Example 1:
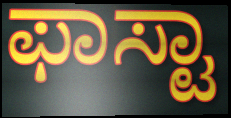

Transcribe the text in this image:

ಫಾಸ್ಟಾ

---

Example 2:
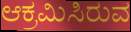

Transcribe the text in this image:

ಆಕ್ರಮಿಸಿರುವ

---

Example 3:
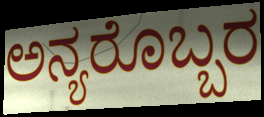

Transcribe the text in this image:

ಅನ್ಯರೊಬ್ಬರ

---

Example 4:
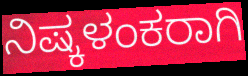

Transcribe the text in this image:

ನಿಷ್ಕಳಂಕರಾಗಿ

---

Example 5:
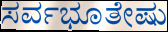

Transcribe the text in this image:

ಸರ್ವಭೂತೇಷು